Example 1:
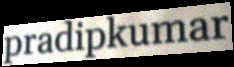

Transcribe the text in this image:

pradipkumar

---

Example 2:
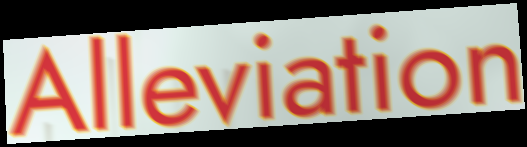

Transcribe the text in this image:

Alleviation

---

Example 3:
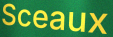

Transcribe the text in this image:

Sceaux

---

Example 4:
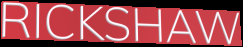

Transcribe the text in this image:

RICKSHAW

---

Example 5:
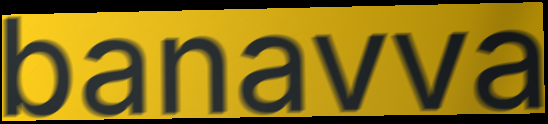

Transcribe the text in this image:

banavva